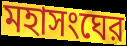
মহাসংঘের